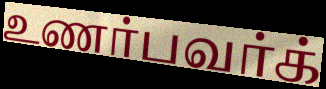
உணர்பவர்க்